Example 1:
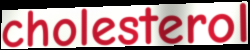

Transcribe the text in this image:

cholesterol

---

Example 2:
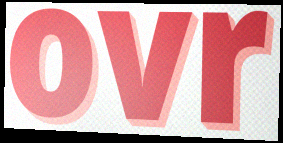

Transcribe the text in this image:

ovr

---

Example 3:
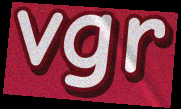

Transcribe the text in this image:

vgr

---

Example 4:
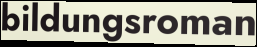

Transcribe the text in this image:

bildungsroman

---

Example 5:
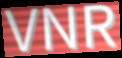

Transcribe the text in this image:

VNR